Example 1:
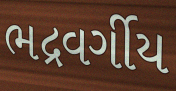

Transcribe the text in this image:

ભદ્રવર્ગીય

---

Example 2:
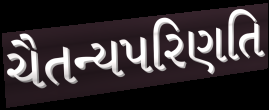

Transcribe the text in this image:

ચૈતન્યપરિણતિ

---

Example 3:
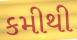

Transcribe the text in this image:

કમીથી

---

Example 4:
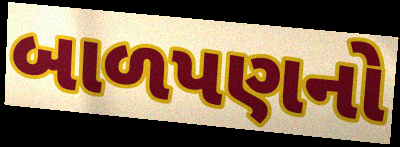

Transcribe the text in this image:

બાળપણનો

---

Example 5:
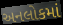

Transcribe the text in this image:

અનલોકમાં